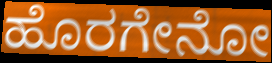
ಹೊರಗೇನೋ